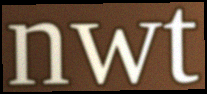
nwt